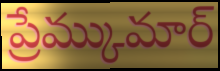
ప్రేమ్కుమార్